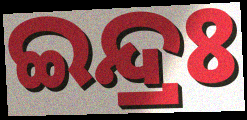
ଇନ୍ଦ୍ରଃ